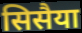
सिसैया